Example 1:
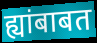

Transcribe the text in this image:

ह्यांबाबत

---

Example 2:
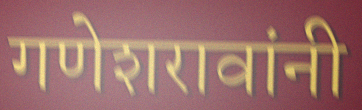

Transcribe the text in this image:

गणेशरावांनी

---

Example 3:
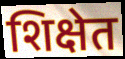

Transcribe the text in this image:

शिक्षेत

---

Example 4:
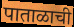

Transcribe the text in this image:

पाताळाची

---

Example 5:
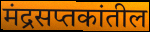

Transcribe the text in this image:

मंद्रसप्तकांतील